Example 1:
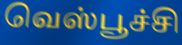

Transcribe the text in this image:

வெஸ்பூச்சி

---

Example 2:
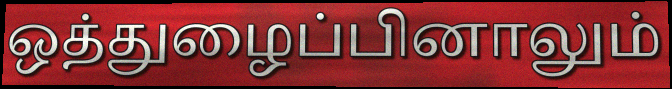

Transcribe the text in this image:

ஒத்துழைப்பினாலும்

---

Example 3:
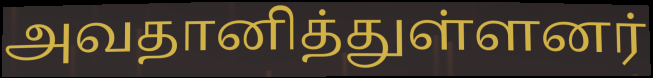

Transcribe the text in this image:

அவதானித்துள்ளனர்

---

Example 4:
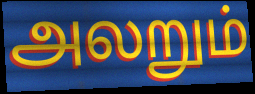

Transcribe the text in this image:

அலறும்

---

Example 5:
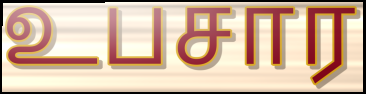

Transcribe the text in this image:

உபசார